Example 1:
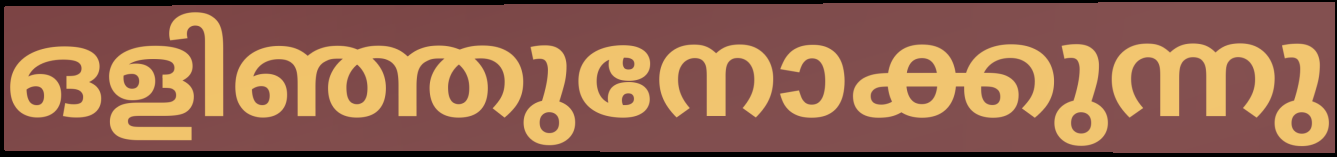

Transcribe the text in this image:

ഒളിഞ്ഞുനോക്കുന്നു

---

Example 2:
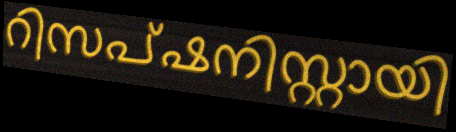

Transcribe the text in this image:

റിസപ്ഷനിസ്റ്റായി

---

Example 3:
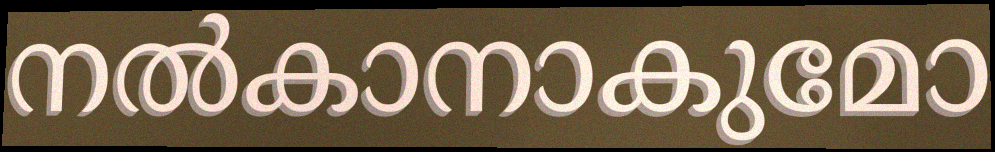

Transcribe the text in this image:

നൽകാനാകുമോ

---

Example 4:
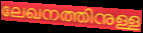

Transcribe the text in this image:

ലേഖനത്തിനുള്ള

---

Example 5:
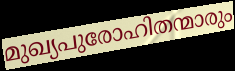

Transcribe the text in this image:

മുഖ്യപുരോഹിതന്മാരും